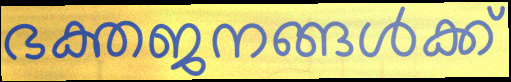
ഭക്തജനങ്ങൾക്ക്